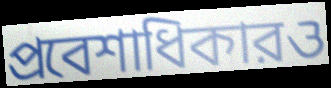
প্রবেশাধিকারও